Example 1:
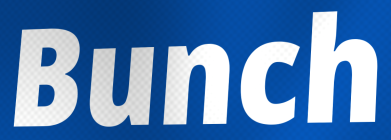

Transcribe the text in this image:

Bunch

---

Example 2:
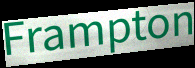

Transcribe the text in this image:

Frampton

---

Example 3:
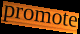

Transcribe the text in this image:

promote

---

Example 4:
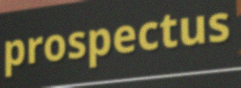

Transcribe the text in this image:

prospectus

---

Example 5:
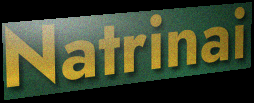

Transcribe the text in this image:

Natrinai